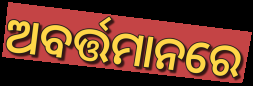
ଅବର୍ତ୍ତମାନରେ